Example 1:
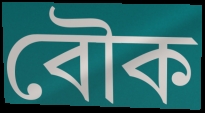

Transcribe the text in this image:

বৌক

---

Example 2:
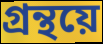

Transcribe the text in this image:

গ্ৰন্থয়ে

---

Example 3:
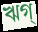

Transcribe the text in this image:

ঋগ্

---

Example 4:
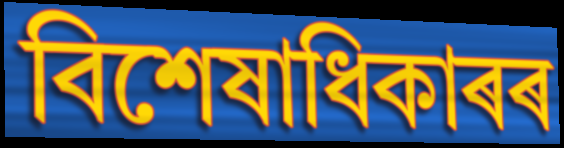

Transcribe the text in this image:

বিশেষাধিকাৰৰ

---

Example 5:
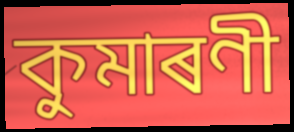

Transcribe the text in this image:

কুমাৰণী